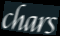
chars